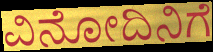
ವಿನೋದಿನಿಗೆ